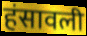
हंसावली